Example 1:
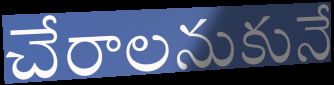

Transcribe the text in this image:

చేరాలనుకునే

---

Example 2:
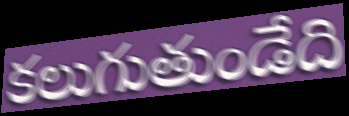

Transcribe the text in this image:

కలుగుతుండేది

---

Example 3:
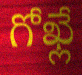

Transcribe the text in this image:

గోఖ్లే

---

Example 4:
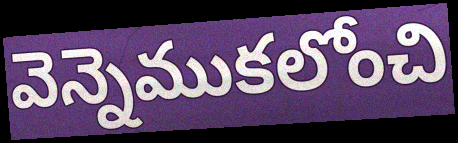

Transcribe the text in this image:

వెన్నెముకలోంచి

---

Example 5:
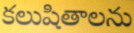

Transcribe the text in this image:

కలుషితాలను